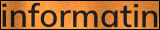
informatin